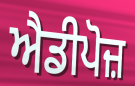
ਐਡੀਪੋਜ਼